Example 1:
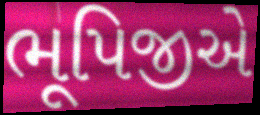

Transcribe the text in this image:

ભૂપિજીએ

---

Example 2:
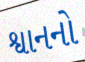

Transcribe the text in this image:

શ્વાનનો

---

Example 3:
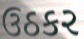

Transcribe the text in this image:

ઉઠકર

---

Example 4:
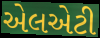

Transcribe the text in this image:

એલએટી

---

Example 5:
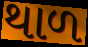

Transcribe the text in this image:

થાળ